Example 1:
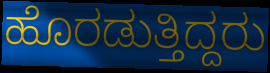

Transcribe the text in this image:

ಹೊರಡುತ್ತಿದ್ದರು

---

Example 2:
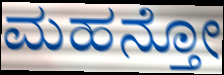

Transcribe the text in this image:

ಮಹನ್ತೋ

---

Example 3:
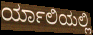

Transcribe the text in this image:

ರ್ಯಾಲಿಯಲ್ಲಿ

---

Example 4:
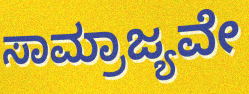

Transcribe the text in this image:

ಸಾಮ್ರಾಜ್ಯವೇ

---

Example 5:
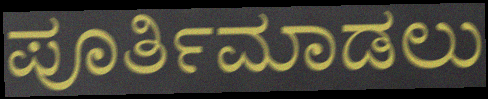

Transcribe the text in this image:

ಪೂರ್ತಿಮಾಡಲು